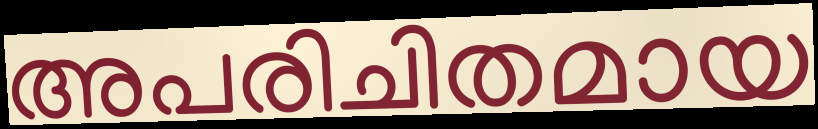
അപരിചിതമായ